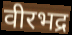
वीरभद्र